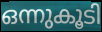
ഒന്നുകൂടി